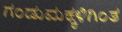
ಗಂಡುಮಕ್ಕಳಿಗಿಂತ